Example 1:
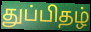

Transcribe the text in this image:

துப்பிதழ்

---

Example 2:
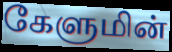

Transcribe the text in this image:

கேளுமின்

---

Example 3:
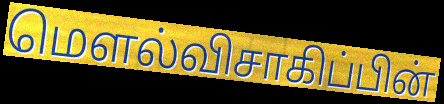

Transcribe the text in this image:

மௌல்விசாகிப்பின்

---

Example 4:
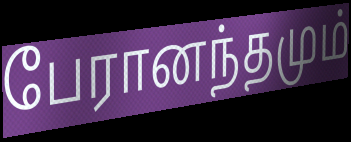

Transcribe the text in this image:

பேரானந்தமும்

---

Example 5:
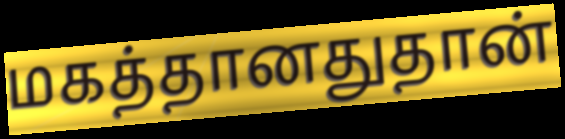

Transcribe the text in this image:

மகத்தானதுதான்